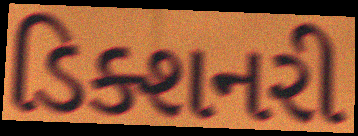
ડિક્શનરી